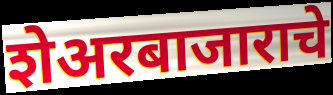
शेअरबाजाराचे